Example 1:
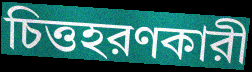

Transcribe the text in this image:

চিত্তহরণকারী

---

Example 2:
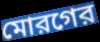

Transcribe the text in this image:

মোরগের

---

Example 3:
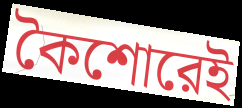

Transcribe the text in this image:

কৈশোরেই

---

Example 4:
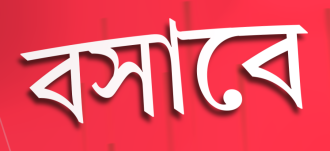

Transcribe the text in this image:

বসাবে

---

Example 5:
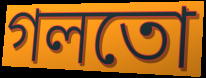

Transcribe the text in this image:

গলতো